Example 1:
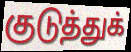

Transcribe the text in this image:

குடுத்துக்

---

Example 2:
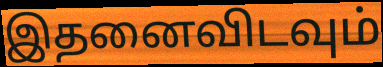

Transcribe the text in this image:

இதனைவிடவும்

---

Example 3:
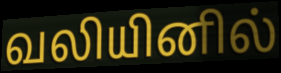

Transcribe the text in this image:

வலியினில்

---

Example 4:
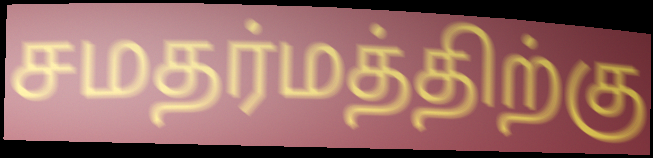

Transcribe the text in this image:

சமதர்மத்திற்கு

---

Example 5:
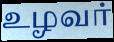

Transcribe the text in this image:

உழவர்